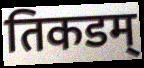
तिकडम्